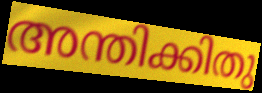
അന്തിക്കിതു